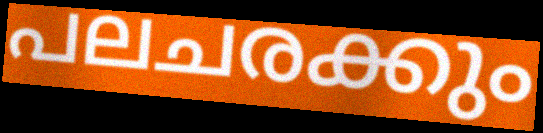
പലചരക്കും